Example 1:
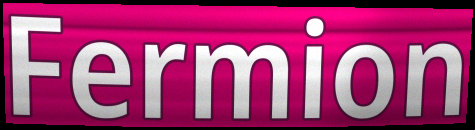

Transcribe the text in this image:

Fermion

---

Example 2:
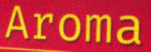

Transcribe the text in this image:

Aroma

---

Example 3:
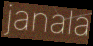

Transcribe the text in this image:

janala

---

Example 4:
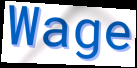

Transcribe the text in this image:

Wage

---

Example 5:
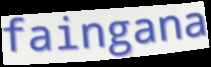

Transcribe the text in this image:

faingana